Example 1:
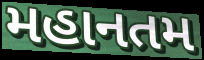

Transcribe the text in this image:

મહાનતમ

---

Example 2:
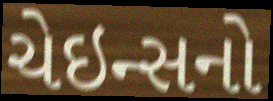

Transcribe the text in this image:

ચેઇન્સનો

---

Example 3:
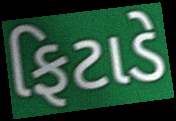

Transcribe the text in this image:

ફિટાડે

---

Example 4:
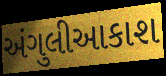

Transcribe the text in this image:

અંગુલીઆકાશ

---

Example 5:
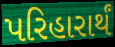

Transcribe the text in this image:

પરિહારાર્થં